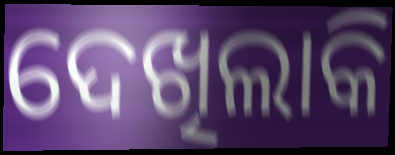
ଦେଖିଲାକି